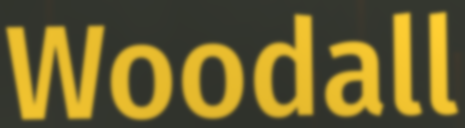
Woodall